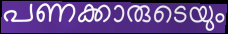
പണക്കാരുടെയും